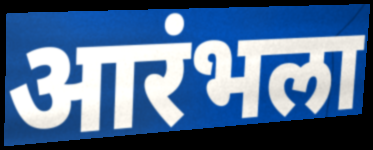
आरंभला